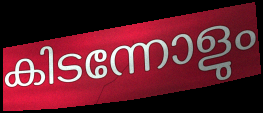
കിടന്നോളും